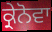
ਕ੍ਰੇਨੋਵਾ